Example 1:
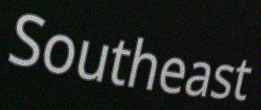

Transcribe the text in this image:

Southeast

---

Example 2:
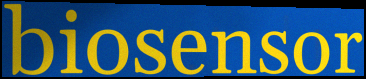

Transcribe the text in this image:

biosensor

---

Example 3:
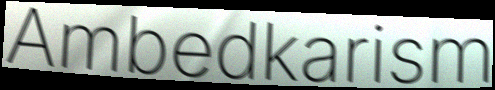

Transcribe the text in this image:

Ambedkarism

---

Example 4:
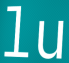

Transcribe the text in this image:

lu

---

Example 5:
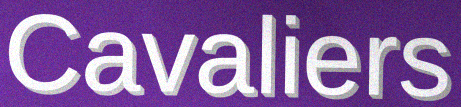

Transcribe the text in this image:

Cavaliers